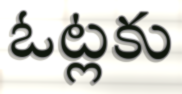
ఓట్లకు